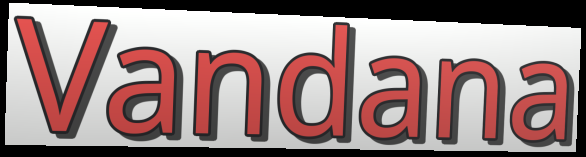
Vandana